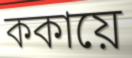
ককায়ে